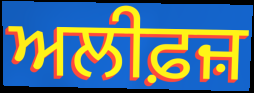
ਅਲੀਫ਼ਜ਼